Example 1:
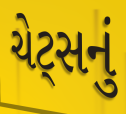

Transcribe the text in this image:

ચેટ્સનું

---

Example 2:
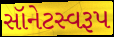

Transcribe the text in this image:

સૉનેટસ્વરૂપ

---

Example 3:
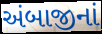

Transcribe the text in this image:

અંબાજીનાં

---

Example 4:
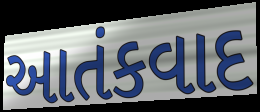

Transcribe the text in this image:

આતંકવાદ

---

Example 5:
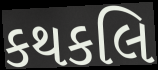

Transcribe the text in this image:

કથકલિ